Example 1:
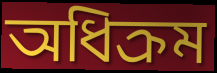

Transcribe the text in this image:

অধিক্রম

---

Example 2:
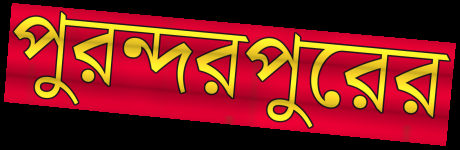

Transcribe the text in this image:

পুরন্দরপুরের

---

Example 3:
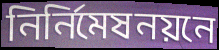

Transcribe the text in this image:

নির্নিমেষনয়নে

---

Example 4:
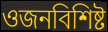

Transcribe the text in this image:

ওজনবিশিষ্ট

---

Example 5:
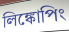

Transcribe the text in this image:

লিঙ্কোপিং